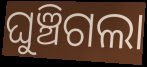
ଘୁଞ୍ଚିଗଲା